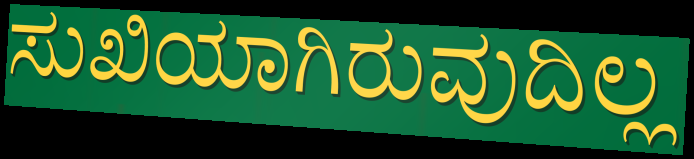
ಸುಖಿಯಾಗಿರುವುದಿಲ್ಲ